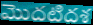
మొదటిదశ